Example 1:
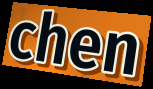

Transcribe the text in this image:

chen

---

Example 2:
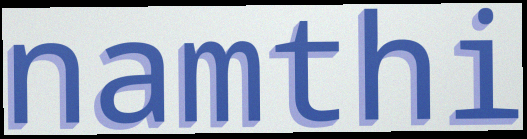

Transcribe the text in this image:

namthi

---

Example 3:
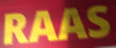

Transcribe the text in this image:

RAAS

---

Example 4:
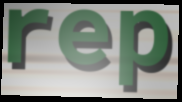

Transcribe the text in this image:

rep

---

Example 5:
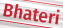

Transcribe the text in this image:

Bhateri